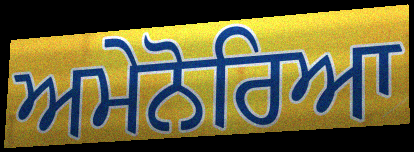
ਅਮੇਨੋਰਿਆ